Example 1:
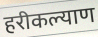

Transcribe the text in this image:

हरीकल्याण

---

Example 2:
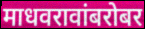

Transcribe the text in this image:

माधवरावांबरोबर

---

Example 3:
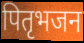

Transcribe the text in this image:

पितृभजन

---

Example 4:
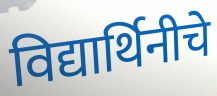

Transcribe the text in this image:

विद्यार्थिनीचे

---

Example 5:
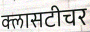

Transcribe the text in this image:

क्लासटीचर